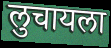
लुचायला